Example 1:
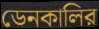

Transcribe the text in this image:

ডেনকালির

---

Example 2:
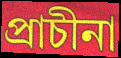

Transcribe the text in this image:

প্রাচীনা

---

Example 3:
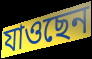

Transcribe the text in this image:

যাওছেন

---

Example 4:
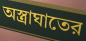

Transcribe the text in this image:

অস্ত্রাঘাতের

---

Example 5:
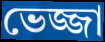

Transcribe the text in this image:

ভেজ্জা